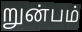
றுன்பம்